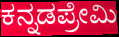
ಕನ್ನಡಪ್ರೇಮಿ